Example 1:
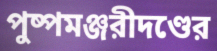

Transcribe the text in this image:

পুষ্পমঞ্জরীদণ্ডের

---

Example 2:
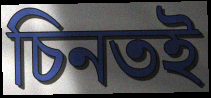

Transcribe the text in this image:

চিনতই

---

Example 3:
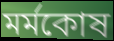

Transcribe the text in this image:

মর্মকোষ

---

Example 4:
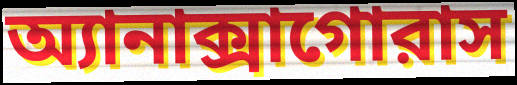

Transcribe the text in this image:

অ্যানাক্সাগোরাস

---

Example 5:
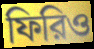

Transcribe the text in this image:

ফিরিও